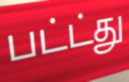
பட்ட்து